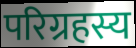
परिग्रहस्य